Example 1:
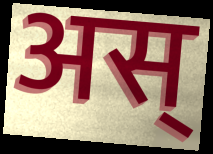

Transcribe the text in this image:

अस्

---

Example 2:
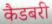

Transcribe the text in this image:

कैडबरी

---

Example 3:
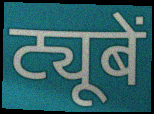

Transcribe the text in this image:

ट्यूबें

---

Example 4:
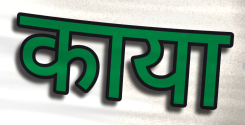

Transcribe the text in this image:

काया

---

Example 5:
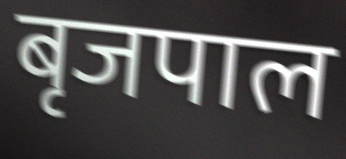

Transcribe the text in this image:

बृजपाल